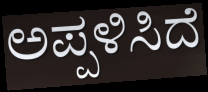
ಅಪ್ಪಳಿಸಿದೆ